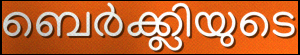
ബെർക്ക്ലിയുടെ